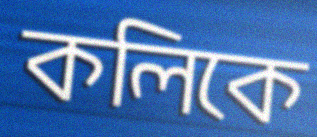
কলিকে